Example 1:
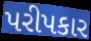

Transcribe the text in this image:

પરીપકાર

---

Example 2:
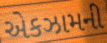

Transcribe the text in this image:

એકઝામની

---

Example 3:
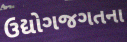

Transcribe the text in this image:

ઉદ્યોગજગતના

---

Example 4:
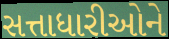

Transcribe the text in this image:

સત્તાધારીઓને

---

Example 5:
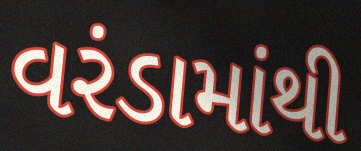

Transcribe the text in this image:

વરંડામાંથી